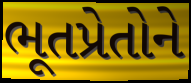
ભૂતપ્રેતોને